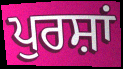
ਪੁਰਸ਼ਾਂ